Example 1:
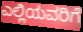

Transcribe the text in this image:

ಎಲ್ಲಿಯವರಿಗೆ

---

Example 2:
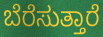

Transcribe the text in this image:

ಬೆರೆಸುತ್ತಾರೆ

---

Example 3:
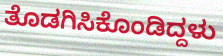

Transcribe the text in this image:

ತೊಡಗಿಸಿಕೊಂಡಿದ್ದಳು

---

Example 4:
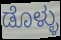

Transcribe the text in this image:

ಡೊಳ್ಳು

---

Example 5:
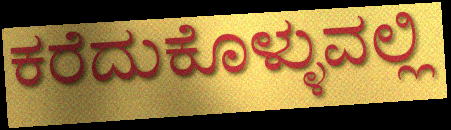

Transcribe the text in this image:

ಕರೆದುಕೊಳ್ಳುವಲ್ಲಿ